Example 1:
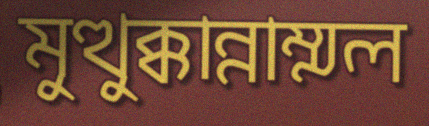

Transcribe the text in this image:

মুত্থুক্কান্নাম্মল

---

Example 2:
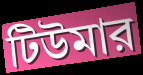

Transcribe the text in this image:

টিউমার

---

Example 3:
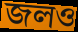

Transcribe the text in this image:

জলও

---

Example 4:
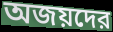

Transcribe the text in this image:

অজয়দের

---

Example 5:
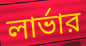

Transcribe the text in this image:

লার্ভার